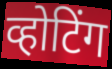
व्होटिंग